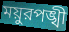
ময়ুরপঙ্খী